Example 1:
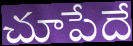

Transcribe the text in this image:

చూపేదే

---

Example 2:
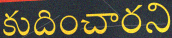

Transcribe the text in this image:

కుదించారని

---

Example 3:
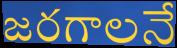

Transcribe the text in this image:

జరగాలనే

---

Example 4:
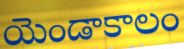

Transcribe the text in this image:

యెండాకాలం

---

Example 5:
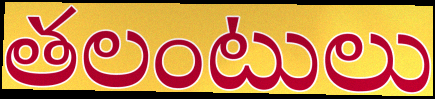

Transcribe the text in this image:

తలంటులు